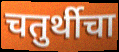
चतुर्थीचा